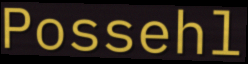
Possehl